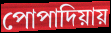
পোপাদিয়ায়